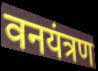
वनयंत्रण